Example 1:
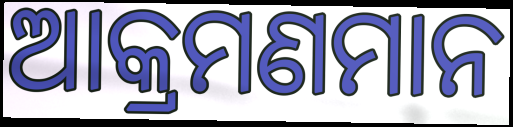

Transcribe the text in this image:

ଆକ୍ରମଣମାନ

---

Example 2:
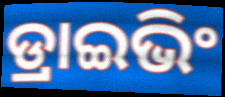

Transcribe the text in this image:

ଡ୍ରାଇଭିଂ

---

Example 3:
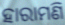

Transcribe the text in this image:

ହାରାମଣି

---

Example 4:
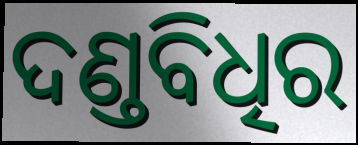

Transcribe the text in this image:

ଦଣ୍ଡବିଧିର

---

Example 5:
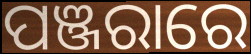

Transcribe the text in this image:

ପଞ୍ଜରାରେ